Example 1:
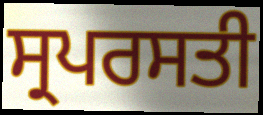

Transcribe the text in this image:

ਸ੍ਰਪਰਸਤੀ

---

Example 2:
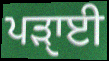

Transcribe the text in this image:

ਪੜਾੑਈ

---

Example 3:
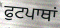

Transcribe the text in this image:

ਫੁਟਪਾਥਾਂ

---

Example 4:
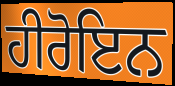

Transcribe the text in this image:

ਹੀਰੋਇਨ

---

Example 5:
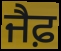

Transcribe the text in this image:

ਜੈਫ਼